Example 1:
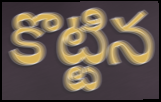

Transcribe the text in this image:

కొట్టిన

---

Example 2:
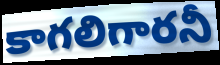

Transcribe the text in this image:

కాగలిగారనీ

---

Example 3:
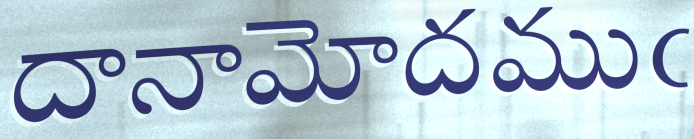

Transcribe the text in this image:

దానామోదముఁ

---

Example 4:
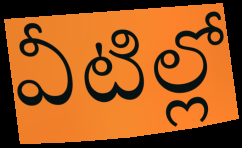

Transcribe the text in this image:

వీటిల్లో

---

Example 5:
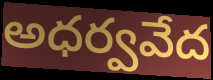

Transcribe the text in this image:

అధర్వవేద